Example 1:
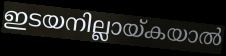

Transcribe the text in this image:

ഇടയനില്ലായ്കയാൽ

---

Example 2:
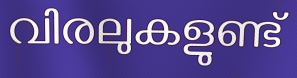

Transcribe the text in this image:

വിരലുകളുണ്ട്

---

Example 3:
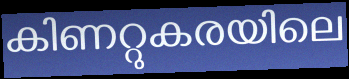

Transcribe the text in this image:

കിണറ്റുകരയിലെ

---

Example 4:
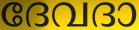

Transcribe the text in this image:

ദേവദാ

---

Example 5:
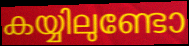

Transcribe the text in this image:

കയ്യിലുണ്ടോ